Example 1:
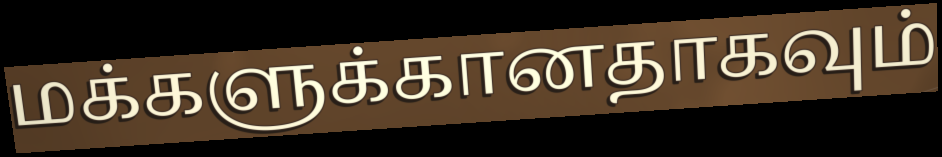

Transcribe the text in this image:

மக்களுக்கானதாகவும்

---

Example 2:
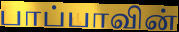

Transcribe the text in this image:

பாப்பாவின்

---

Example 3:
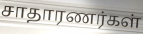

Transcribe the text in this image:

சாதாரணர்கள்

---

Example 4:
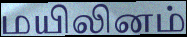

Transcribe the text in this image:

மயிலினம்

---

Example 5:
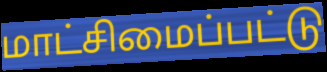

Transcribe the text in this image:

மாட்சிமைப்பட்டு